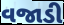
વજાડી